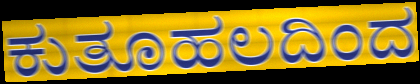
ಕುತೂಹಲದಿಂದ